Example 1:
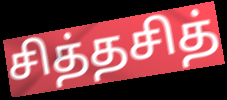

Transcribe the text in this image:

சித்தசித்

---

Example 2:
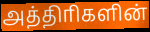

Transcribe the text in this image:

அத்திரிகளின்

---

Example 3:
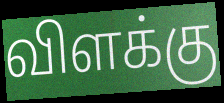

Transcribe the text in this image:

விளக்கு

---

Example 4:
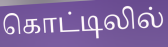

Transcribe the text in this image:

கொட்டிலில்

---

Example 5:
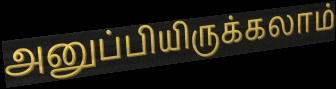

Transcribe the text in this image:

அனுப்பியிருக்கலாம்